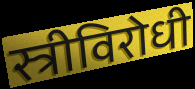
स्त्रीविरोधी